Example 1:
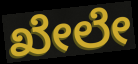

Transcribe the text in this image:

ಖೇಲೇ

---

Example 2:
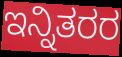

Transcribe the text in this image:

ಇನ್ನಿತರರ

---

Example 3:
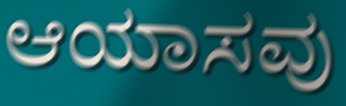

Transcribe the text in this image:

ಆಯಾಸವು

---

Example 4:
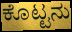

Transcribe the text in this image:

ಕೊಟ್ಟನು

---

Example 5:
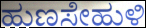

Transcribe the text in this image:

ಹುಣಸೇಹುಳಿ